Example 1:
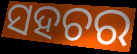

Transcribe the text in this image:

ସହଚର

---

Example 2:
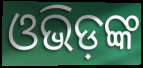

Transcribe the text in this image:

ଓଭିଡ଼ଙ୍କ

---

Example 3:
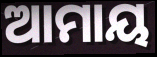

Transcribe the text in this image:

ଆମାୟ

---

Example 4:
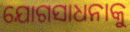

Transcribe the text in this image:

ଯୋଗସାଧନାକୁ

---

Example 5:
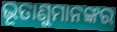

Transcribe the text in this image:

ଭୂତାଣୁମାନଙ୍କର